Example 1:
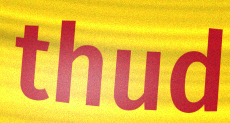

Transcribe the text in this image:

thud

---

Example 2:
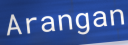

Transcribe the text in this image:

Arangan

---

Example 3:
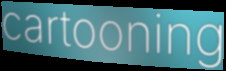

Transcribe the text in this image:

cartooning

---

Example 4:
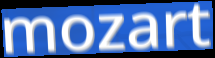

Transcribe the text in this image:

mozart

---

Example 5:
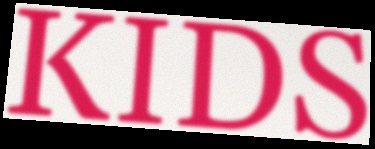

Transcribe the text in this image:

KIDS